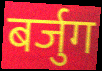
बर्जुग